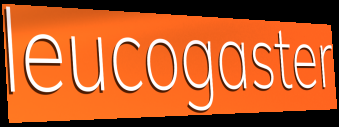
leucogaster